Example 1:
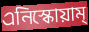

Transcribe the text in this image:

এনিস্কোয়াম্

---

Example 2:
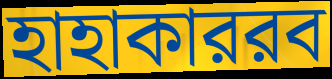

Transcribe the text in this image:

হাহাকাররব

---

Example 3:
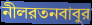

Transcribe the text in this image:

নীলরতনবাবুর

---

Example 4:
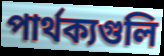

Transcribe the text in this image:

পার্থক্যগুলি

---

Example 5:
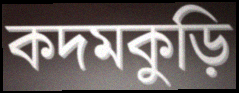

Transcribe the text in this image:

কদমকুড়ি